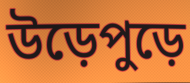
উড়েপুড়ে